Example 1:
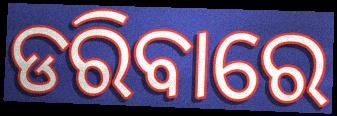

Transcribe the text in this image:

ଡରିବାରେ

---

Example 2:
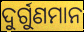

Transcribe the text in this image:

ଦୁର୍ଗୁଣମାନ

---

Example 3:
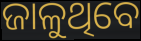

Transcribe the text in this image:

ଜାଳୁଥିବେ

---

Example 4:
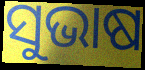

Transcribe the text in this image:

ସୁଭାଷ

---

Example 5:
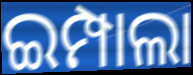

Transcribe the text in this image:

ଇମ୍ପାଲା